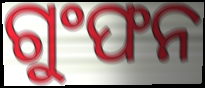
ଗୁଂଫନ